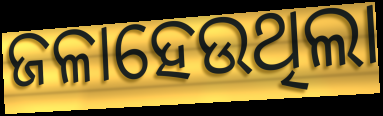
ଜଳାହେଉଥିଲା